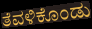
ತೆವಳಿಕೊಂಡು